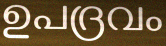
ഉപദ്രവം